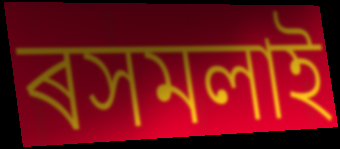
ৰসমলাই